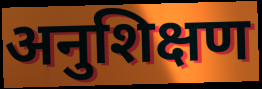
अनुशिक्षण